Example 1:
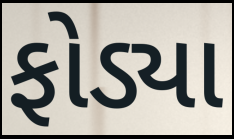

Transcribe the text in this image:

ફોડ્યા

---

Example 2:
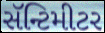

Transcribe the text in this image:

સૅન્ટિમીટર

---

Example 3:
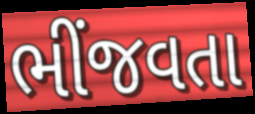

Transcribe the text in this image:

ભીંજવતા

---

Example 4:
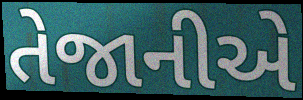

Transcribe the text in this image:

તેજાનીએ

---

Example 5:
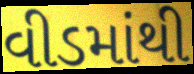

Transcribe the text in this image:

વીડમાંથી